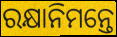
ରକ୍ଷାନିମନ୍ତେ